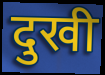
दुखी